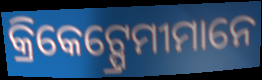
କ୍ରିକେଟ୍ପ୍ରେମୀମାନେ